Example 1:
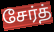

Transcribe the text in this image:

சேர்த்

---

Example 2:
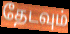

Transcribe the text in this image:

தேடவும்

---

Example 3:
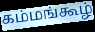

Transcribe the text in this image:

கம்மங்கூழ்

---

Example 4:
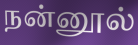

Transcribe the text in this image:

நன்னூல்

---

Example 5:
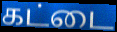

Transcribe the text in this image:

கட்டை